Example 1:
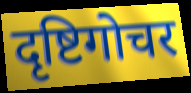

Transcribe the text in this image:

दृष्टिगोचर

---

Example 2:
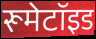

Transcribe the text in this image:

रूमेटॉइड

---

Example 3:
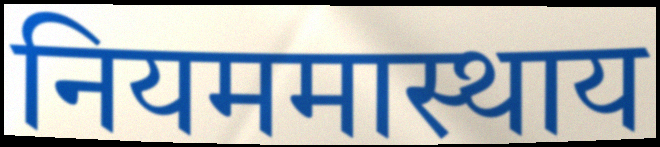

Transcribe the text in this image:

नियममास्थाय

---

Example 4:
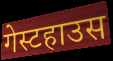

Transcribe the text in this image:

गेस्टहाउस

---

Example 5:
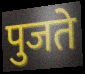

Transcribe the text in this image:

पुजते